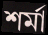
শর্মা